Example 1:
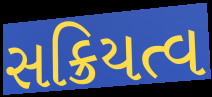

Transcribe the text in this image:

સક્રિયત્વ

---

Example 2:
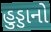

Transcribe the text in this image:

હુડ્ડાનો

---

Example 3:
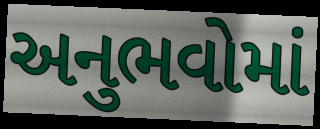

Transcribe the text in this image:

અનુભવોમાં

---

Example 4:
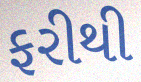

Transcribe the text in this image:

ફરીથી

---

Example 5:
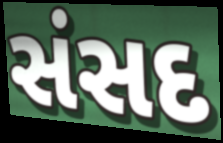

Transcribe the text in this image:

સંસદ